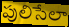
పులిసేలా